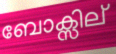
ബോക്സില്